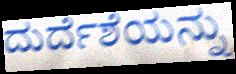
ದುರ್ದೆಶೆಯನ್ನು